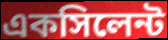
একসিলেন্ট